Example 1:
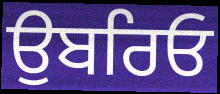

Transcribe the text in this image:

ਉਬਰਿਓ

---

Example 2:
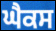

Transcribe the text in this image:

ਘੈਕਸ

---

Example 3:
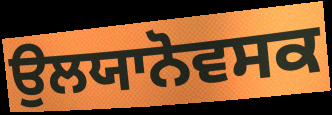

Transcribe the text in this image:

ਉਲਯਾਨੋਵਸਕ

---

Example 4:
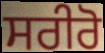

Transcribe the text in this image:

ਸਰੀਰੋ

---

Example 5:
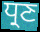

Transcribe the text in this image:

ਧ੍ਰਣ